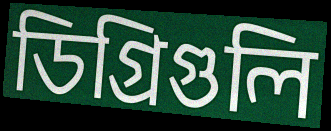
ডিগ্রিগুলি